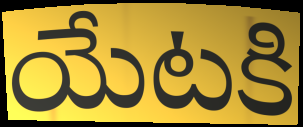
యేటకి